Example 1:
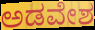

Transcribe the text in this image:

ಅಡವೇಶ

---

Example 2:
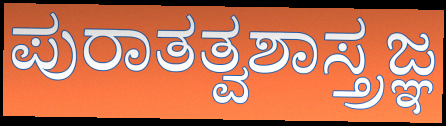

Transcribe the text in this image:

ಪುರಾತತ್ವಶಾಸ್ತ್ರಜ್ಞ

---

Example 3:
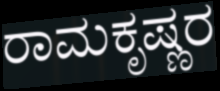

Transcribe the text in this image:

ರಾಮಕೃಷ್ಣರ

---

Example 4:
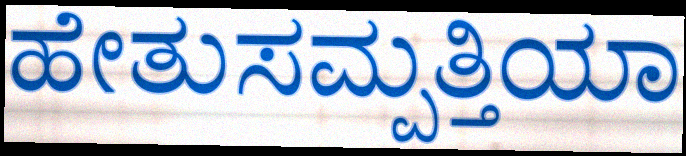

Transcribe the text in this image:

ಹೇತುಸಮ್ಪತ್ತಿಯಾ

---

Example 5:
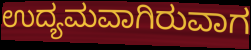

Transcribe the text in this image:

ಉದ್ಯಮವಾಗಿರುವಾಗ